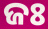
ଜଃ